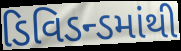
ડિવિડન્ડમાંથી